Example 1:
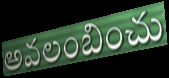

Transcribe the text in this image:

అవలంబించు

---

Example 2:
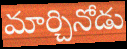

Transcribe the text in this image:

మార్చినోడు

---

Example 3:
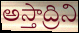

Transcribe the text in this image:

అస్తాద్రిని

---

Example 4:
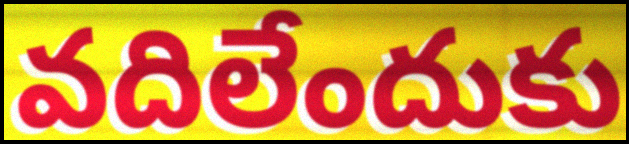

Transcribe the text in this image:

వదిలేందుకు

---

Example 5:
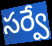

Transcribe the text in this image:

సర్వే